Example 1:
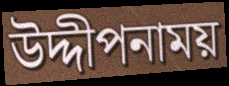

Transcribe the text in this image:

উদ্দীপনাময়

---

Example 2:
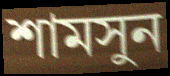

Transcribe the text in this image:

শামসুন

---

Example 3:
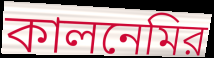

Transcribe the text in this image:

কালনেমির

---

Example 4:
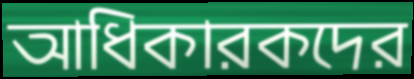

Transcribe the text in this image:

আধিকারকদের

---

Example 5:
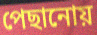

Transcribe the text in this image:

পেছানোয়